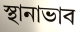
স্থানাভাব